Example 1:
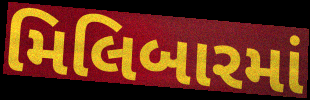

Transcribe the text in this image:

મિલિબારમાં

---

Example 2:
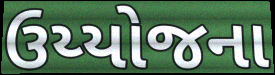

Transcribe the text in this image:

ઉય્યોજના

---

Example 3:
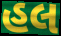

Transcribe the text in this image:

હલ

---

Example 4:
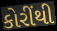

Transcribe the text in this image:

કોરીંથી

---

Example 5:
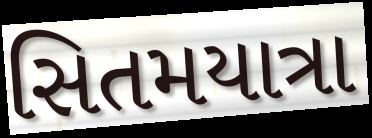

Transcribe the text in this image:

સિતમયાત્રા